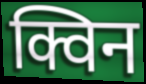
क्विन